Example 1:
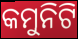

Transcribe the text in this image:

କମୁନିଟି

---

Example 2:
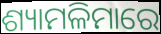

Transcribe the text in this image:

ଶ୍ୟାମଳିମାରେ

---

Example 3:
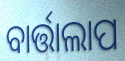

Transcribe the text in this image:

ବାର୍ତ୍ତାଲାପ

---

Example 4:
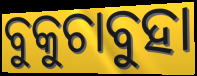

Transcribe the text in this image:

ବୁକୁଚାବୁହା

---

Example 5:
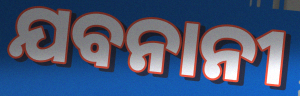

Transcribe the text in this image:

ଯବନାନୀ